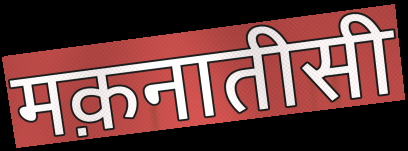
मक़नातीसी